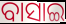
ବାସାଇ